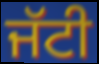
ਜੱਟੀ